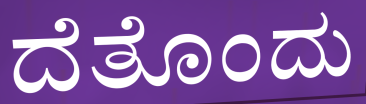
ದೆತೊಂದು